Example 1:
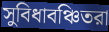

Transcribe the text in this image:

সুবিধাবঞ্চিতরা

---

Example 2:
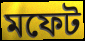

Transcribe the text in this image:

মফেট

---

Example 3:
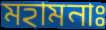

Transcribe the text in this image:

মহামনাঃ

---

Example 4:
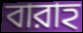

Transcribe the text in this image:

বারাহ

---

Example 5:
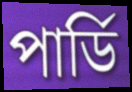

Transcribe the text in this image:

পার্ডি